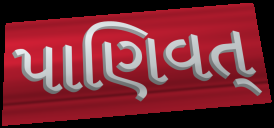
પાણિવત્